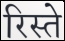
रिस्ते